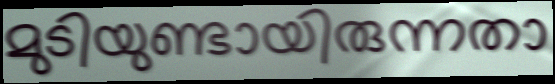
മുടിയുണ്ടായിരുന്നതാ